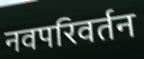
नवपरिवर्तन